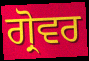
ਗ੍ਰੋਵਰ